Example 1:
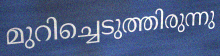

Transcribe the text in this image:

മുറിച്ചെടുത്തിരുന്നു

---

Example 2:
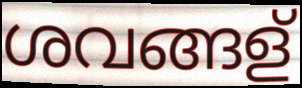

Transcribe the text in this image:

ശവങ്ങള്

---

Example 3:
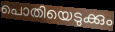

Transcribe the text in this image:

പൊതിയെടുക്കും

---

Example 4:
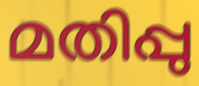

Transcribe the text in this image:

മതിപ്പു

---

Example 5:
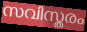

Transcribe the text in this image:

സവിസ്തരം